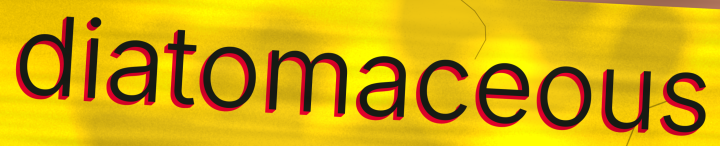
diatomaceous